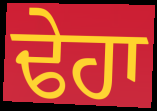
ਢੇਹਾ